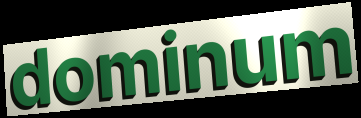
dominum